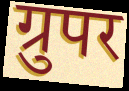
ग्रुपर